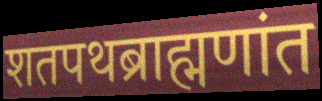
शतपथब्राह्मणांत